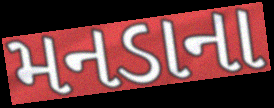
મનડાના